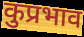
कुप्रभाव